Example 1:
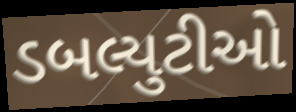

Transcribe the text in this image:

ડબલ્યુટીઓ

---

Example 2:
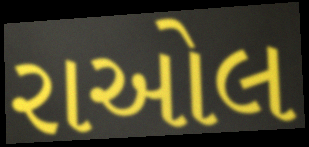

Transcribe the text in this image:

રાઓલ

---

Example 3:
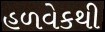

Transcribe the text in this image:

હળવેકથી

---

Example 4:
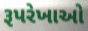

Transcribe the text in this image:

રૂપરેખાઓ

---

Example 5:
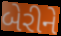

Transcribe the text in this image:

બેરીને